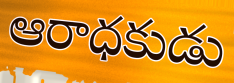
ఆరాధకుడు